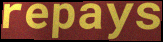
repays